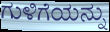
ಗುಳಿಗೆಯನ್ನು